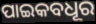
ପାଇକବଧୂର